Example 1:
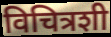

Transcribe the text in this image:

विचित्रशी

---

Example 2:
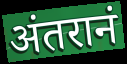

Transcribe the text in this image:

अंतरानं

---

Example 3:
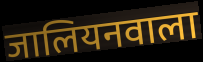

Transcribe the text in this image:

जालियनवाला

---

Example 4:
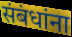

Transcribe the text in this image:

संबंधांना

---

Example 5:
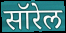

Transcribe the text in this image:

सॉरेल